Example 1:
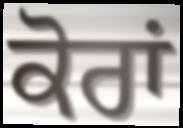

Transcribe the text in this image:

ਕੋਰਾਂ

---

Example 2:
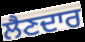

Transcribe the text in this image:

ਲੈਣਦਾਰ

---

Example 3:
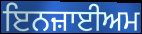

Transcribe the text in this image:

ਇਨਜ਼ਾਈਅਮ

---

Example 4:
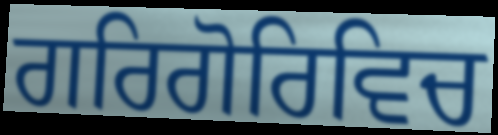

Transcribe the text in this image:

ਗਰਿਗੋਰਿਵਿਚ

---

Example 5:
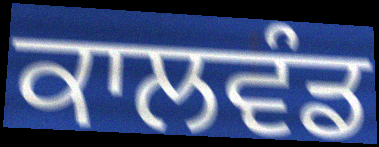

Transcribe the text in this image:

ਕਾਲਵੰਡ